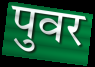
पुवर